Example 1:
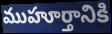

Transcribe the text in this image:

ముహూర్తానికి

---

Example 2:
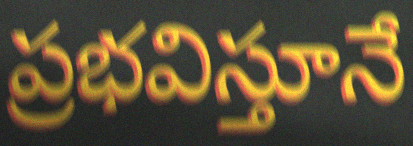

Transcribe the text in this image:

ప్రభవిస్తూనే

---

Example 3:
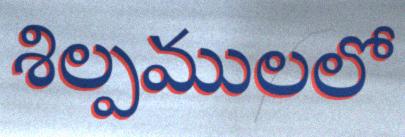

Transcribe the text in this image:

శిల్పములలో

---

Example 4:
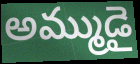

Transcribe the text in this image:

అమ్ముడై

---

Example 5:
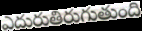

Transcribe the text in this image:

ఎదురుతిరుగుతుంది